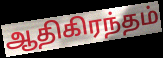
ஆதிகிரந்தம்